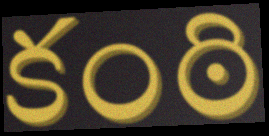
కంఠి